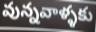
వున్నవాళ్ళకు